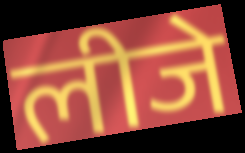
लीजे